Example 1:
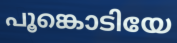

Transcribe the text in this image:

പൂങ്കൊടിയേ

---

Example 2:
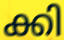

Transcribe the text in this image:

ക്കി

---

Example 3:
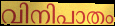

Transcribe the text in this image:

വിനിപാതം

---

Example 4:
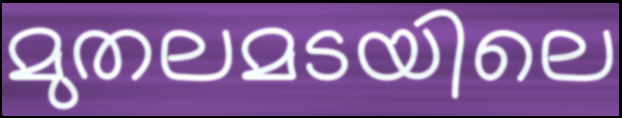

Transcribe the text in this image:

മുതലമടയിലെ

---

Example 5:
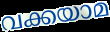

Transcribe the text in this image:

വക്കയാമ